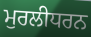
ਮੁਰਲੀਧਰਨ